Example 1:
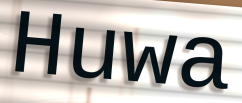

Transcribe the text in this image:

Huwa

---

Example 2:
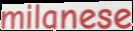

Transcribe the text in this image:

milanese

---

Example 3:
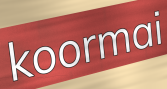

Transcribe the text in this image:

koormai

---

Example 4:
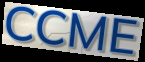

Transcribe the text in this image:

CCME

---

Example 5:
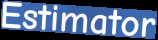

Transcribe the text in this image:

Estimator